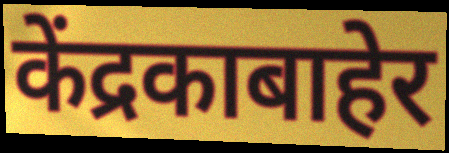
केंद्रकाबाहेर